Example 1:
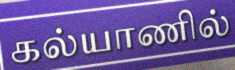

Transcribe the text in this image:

கல்யாணில்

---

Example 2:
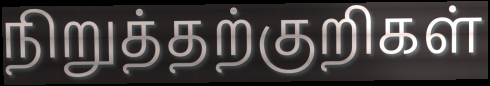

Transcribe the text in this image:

நிறுத்தற்குறிகள்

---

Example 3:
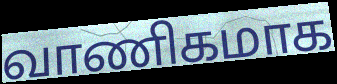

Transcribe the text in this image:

வாணிகமாக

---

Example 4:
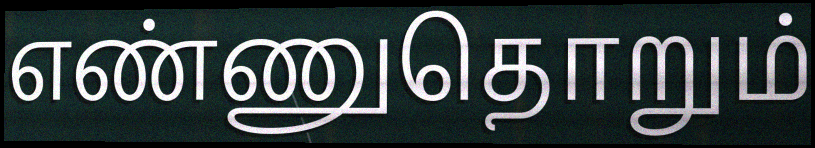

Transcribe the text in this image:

எண்ணுதொறும்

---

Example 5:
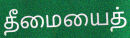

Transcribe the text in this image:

தீமையைத்